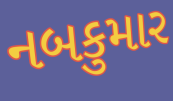
નબકુમાર